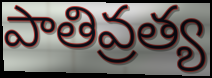
పాతివ్రత్య